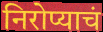
निरोप्याचं